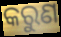
କରୁଣ